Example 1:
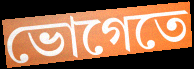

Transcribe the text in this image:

ভোগেতে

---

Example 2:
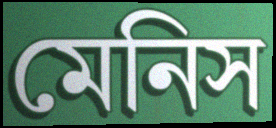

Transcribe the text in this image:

মেনিস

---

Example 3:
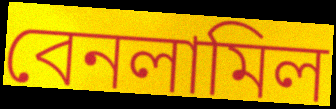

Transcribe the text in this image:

বেনলামিল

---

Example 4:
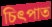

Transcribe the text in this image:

চিৎপাত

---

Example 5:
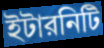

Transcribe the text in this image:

ইটারনিটি